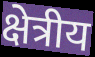
क्षेत्रीय